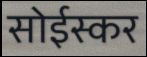
सोईस्कर